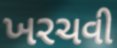
ખરચવી